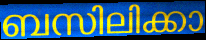
ബസിലിക്കാ